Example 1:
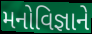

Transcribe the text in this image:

મનોવિજ્ઞાને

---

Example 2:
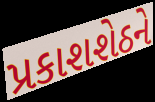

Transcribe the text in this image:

પ્રકાશશેઠને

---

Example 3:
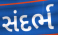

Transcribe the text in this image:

સંદર્ભ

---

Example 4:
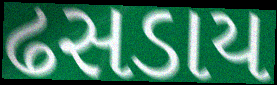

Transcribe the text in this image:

ઢસડાય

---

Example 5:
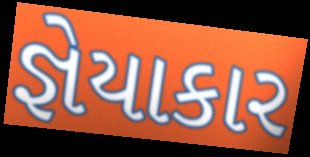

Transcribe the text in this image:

જ્ઞેયાકાર